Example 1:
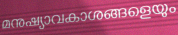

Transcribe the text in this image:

മനുഷ്യാവകാശങ്ങളെയും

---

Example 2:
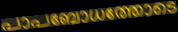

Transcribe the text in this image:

പാപബോധത്തോടെ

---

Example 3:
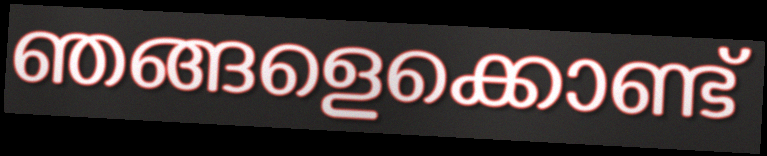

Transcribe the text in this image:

ഞങ്ങളെക്കൊണ്ട്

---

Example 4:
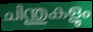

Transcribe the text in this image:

ചിന്തുകളും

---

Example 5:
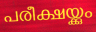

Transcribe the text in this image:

പരീക്ഷയ്ക്കും